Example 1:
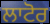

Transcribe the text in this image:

ਲਾਟੋਰ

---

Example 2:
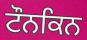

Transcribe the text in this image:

ਟੌਨਕਿਨ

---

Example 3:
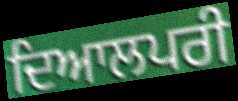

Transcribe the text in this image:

ਦਿਆਲਪਰੀ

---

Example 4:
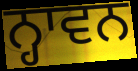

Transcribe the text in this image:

ਨ੍ਹਾਵਨ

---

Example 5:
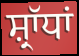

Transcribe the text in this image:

ਸ਼੍ਰਾੱਧਾਂ